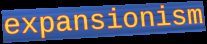
expansionism